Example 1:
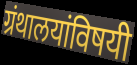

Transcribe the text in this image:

ग्रंथालयांविषयी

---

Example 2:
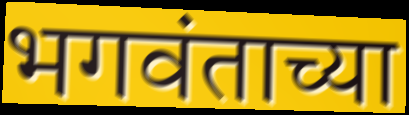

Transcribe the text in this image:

भगवंताच्या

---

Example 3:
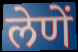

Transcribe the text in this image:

लेणें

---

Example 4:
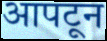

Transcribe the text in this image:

आपटून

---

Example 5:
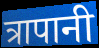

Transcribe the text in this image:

त्रापानी